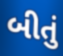
બીતું